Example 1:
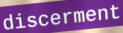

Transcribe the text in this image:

discerment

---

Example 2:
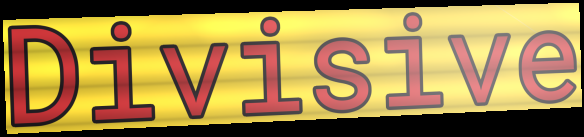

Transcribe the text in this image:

Divisive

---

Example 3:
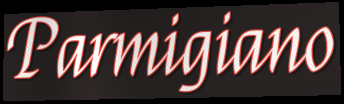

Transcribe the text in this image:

Parmigiano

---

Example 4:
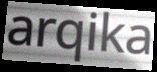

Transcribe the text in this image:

arqika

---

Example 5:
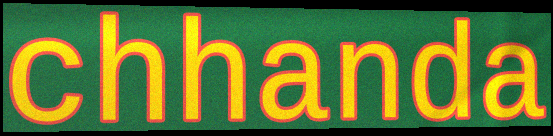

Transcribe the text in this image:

chhanda